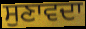
ਸੁਣਾਵਦਾ